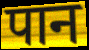
पान